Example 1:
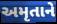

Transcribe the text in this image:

અમૃતાને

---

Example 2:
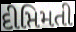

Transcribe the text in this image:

દીપ્તિમતી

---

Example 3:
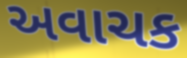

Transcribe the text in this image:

અવાચક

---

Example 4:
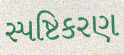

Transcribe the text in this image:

સ્પષ્ટિકરણ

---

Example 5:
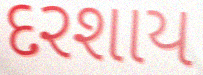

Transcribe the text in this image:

દરશાય